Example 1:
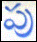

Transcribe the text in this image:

పు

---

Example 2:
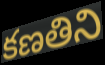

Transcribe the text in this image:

కణతిని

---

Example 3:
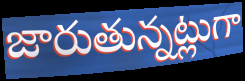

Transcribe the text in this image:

జారుతున్నట్లుగా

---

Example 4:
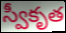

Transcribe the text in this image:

స్వీకృత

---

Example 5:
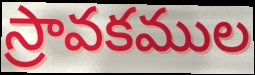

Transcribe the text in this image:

స్రావకముల